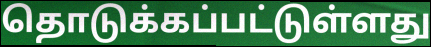
தொடுக்கப்பட்டுள்ளது